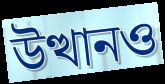
উত্থানও